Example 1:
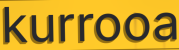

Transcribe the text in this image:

kurrooa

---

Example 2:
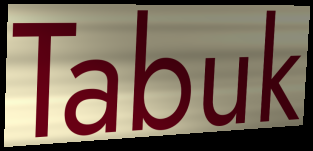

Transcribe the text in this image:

Tabuk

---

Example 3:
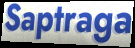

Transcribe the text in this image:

Saptraga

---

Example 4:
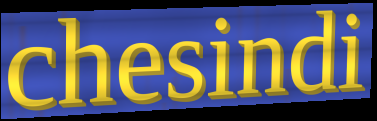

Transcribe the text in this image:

chesindi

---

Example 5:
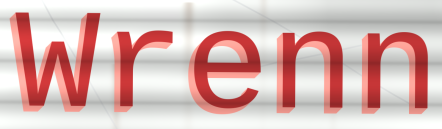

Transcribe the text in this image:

Wrenn